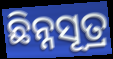
ଛିନ୍ନସୂତ୍ର